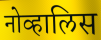
नोव्हालिस